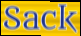
Sack